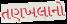
તણખલાનો